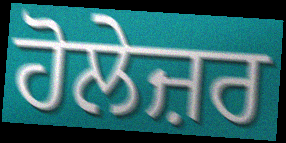
ਹੋਲੇਜ਼ਰ